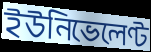
ইউনিভেলেণ্ট